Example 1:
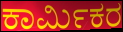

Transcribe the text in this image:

ಕಾರ್ಮಿಕರ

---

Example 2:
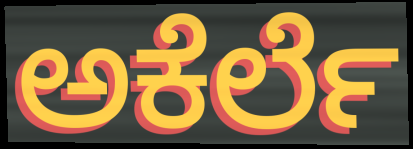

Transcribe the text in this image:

ಅಕೆರ್ಲೆ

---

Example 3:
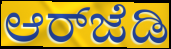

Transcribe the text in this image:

ಆರ್‌ಜೆಡಿ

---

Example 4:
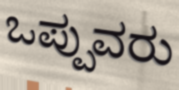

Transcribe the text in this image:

ಒಪ್ಪುವರು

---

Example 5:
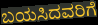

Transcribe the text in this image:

ಬಯಸಿದವರಿಗೆ